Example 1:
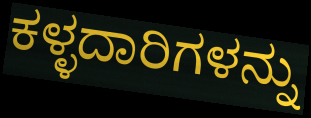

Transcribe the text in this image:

ಕಳ್ಳದಾರಿಗಳನ್ನು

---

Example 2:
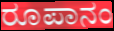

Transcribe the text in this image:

ರೂಪಾನಂ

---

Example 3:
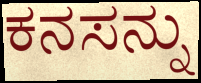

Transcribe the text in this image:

ಕನಸನ್ನು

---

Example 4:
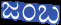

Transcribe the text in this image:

ಜಂಬ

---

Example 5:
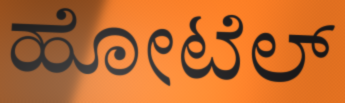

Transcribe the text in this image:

ಹೋಟೆಲ್